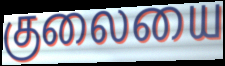
குலையை